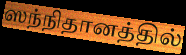
ஸந்நிதானத்தில்